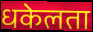
धकेलता